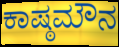
ಕಾಷ್ಠಮೌನ